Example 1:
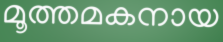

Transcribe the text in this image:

മൂത്തമകനായ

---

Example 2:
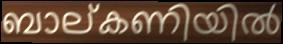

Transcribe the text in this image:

ബാല്കണിയിൽ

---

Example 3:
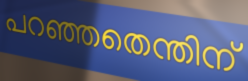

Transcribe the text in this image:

പറഞ്ഞതെന്തിന്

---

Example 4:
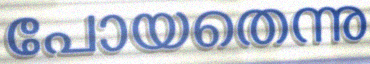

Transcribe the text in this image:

പോയതെന്നു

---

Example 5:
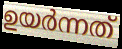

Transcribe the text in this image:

ഉയർന്നത്